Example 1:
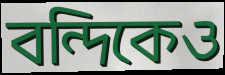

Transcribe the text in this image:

বন্দিকেও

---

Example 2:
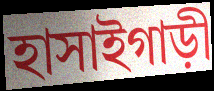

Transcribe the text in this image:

হাসাইগাড়ী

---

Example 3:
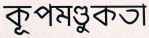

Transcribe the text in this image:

কূপমণ্ডুকতা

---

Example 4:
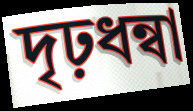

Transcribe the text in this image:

দৃঢ়ধন্বা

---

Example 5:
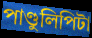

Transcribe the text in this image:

পাণ্ডুলিপিটা